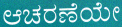
ಆಚರಣೆಯೇ